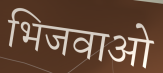
भिजवाओ